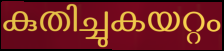
കുതിച്ചുകയറ്റം